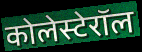
कोलेस्टेरॉल